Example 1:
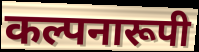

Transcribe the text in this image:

कल्पनारूपी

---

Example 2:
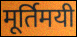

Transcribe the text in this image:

मूर्तिमयी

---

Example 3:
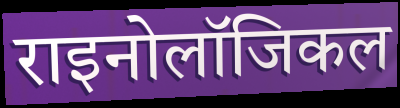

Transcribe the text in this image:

राइनोलॉजिकल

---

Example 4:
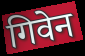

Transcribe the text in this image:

गिवेन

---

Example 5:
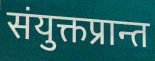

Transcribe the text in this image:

संयुक्तप्रान्त